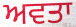
ਅਵਤਾ